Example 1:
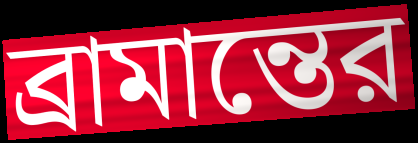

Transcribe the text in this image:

ব্রামান্তের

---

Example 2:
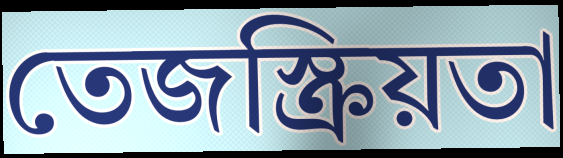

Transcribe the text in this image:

তেজস্ক্রিয়তা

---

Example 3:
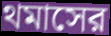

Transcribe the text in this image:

থমাসের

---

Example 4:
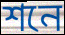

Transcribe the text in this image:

শনে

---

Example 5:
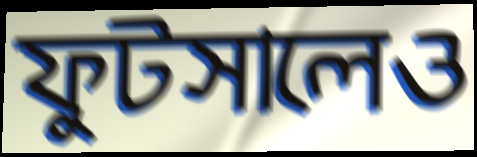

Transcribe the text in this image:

ফুটসালেও